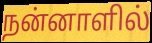
நன்னாளில்